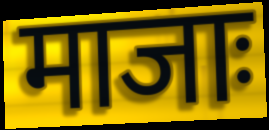
माजाः